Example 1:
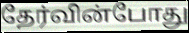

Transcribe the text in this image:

தேர்வின்போது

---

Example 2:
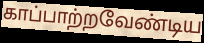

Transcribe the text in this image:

காப்பாற்றவேண்டிய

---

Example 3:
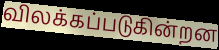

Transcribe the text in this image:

விலக்கப்படுகின்றன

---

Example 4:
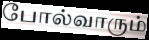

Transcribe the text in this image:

போல்வாரும்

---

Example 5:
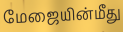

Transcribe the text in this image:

மேஜையின்மீது